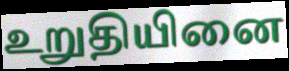
உறுதியினை